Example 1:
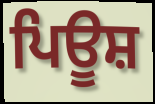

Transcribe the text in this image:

ਪਿਊਸ਼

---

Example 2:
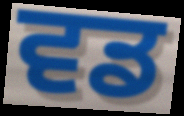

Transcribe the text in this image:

ਵਡ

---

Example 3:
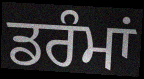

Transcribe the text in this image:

ਡਰੰਮਾਂ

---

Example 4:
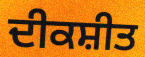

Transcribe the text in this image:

ਦੀਕਸ਼ੀਤ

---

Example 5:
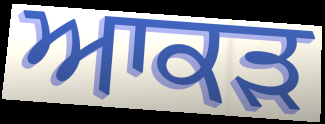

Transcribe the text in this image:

ਆਕੜ